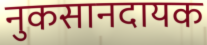
नुकसानदायक